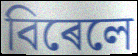
বিৰেলে